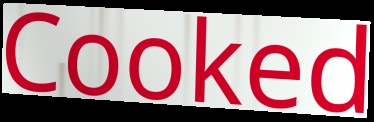
Cooked